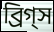
ব্রিগ্‌স